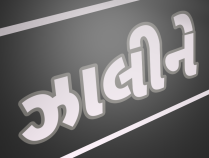
ઝાલીને